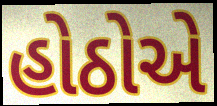
હોઠોએ